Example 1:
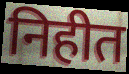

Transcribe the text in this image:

निहीत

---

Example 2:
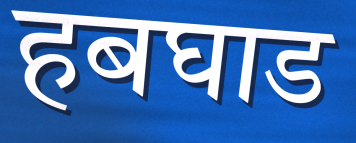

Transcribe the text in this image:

हबघाड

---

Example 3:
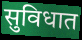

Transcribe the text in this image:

सुविधात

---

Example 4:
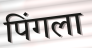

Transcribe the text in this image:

पिंगला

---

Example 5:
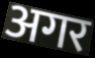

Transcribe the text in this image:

अगर